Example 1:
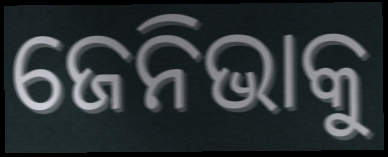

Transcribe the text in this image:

ଜେନିଭାକୁ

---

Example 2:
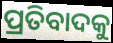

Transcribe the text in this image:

ପ୍ରତିବାଦକୁ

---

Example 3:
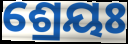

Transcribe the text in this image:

ଶ୍ରେୟଃ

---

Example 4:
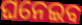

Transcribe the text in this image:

ଘନେଇବ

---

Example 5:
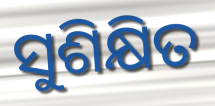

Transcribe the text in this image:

ସୁଶିକ୍ଷିତ